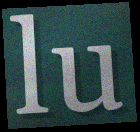
lu